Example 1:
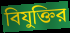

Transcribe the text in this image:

বিযুক্তির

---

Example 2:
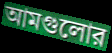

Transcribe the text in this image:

আমগুলোর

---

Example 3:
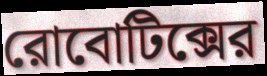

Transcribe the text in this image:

রোবোটিক্সের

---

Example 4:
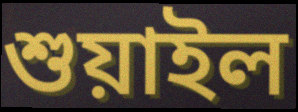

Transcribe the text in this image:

শুয়াইল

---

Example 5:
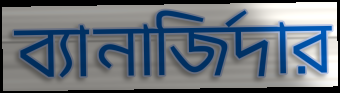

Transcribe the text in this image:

ব্যানার্জিদার